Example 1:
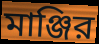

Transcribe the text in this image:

মাঞ্জির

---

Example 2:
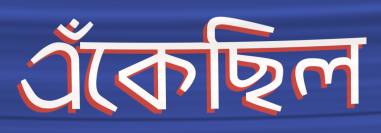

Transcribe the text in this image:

এঁকেছিল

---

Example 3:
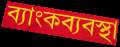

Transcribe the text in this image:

ব্যাংকব্যবস্থা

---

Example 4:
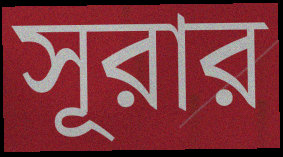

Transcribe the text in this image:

সূরার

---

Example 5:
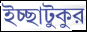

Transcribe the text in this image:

ইচ্ছাটুকুর